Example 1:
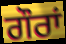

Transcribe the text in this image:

ਗੌਰਾਂ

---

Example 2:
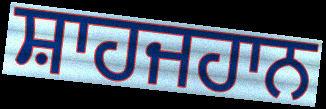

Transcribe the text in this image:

ਸ਼ਾਹਜਹਾਨ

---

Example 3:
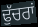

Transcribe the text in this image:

ਢੁੱਚਰਾਂ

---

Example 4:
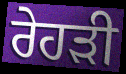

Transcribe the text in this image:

ਰੇਹੜੀ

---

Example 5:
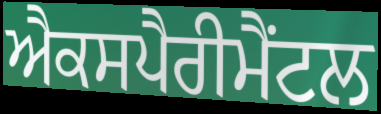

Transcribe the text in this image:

ਐਕਸਪੈਰੀਮੈਂਟਲ